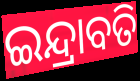
ଇନ୍ଦ୍ରାବତି